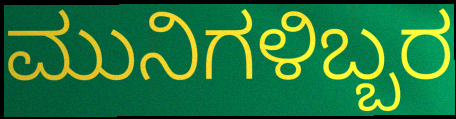
ಮುನಿಗಳಿಬ್ಬರ